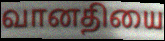
வானதியை